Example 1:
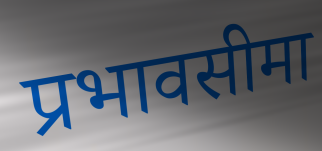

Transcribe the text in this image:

प्रभावसीमा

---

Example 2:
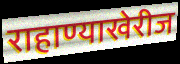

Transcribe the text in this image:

राहाण्याखेरीज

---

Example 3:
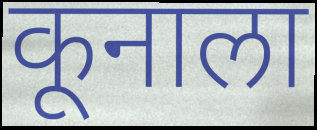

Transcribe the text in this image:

कूनाला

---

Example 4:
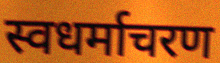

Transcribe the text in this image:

स्वधर्माचरण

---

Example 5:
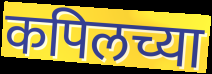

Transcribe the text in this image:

कपिलच्या